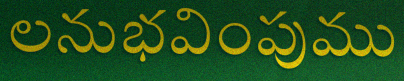
లనుభవింపుము